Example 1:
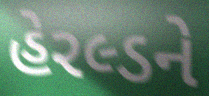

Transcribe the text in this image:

હેરલ્ડને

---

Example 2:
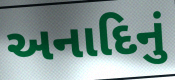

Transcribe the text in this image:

અનાદિનું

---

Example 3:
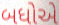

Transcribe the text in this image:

બધોએ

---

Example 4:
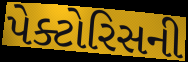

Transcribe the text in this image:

પેક્ટોરિસની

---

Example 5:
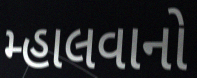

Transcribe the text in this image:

મ્હાલવાનો